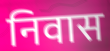
निवास